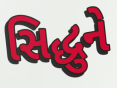
સિદ્ધુને